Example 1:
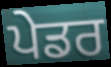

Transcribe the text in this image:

ਪੇਡਰ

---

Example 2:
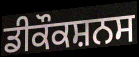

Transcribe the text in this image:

ਡੀਕੌਕਸ਼ਨਸ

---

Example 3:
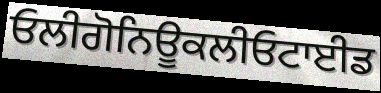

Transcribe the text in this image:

ਓਲੀਗੋਨਿਊਕਲੀਓਟਾਈਡ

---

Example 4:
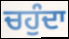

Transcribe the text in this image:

ਚਹੁੰਦਾ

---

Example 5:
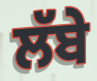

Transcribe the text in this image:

ਲੱਬੇ